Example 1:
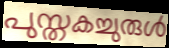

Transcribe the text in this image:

പുസ്തകച്ചുരുൾ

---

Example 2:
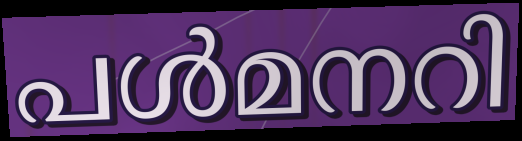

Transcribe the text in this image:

പൾമനറി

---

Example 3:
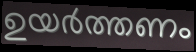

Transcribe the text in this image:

ഉയർത്തണം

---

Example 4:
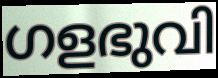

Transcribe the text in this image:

ഗളഭുവി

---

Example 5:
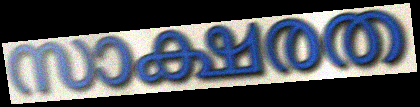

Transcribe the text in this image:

സാക്ഷരത